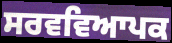
ਸਰਵਵਿਆਪਕ